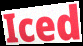
Iced